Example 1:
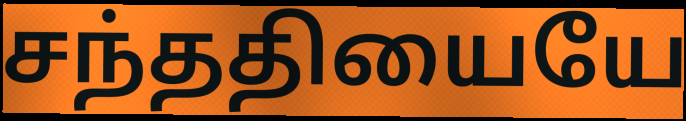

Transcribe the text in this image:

சந்ததியையே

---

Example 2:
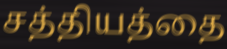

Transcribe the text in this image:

சத்தியத்தை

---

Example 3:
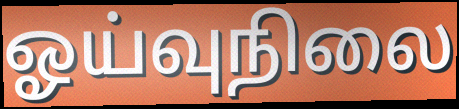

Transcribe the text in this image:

ஓய்வுநிலை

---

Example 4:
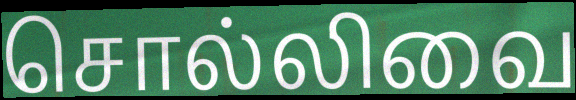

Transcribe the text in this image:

சொல்லிவை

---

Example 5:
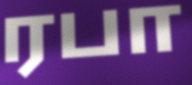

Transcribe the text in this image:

ரபா